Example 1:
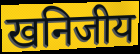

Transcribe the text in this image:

खनिजीय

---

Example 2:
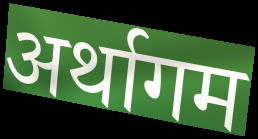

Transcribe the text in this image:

अर्थागम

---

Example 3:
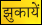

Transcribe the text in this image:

झुकायें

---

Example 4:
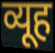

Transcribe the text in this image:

व्यूह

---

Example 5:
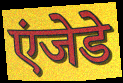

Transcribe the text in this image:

एंजेडे